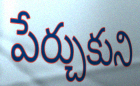
పేర్చుకుని